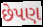
છેપણ